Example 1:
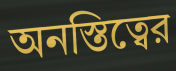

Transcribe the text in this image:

অনস্তিত্বের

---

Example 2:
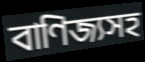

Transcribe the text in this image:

বাণিজ্যসহ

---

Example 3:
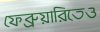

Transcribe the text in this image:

ফেব্রুয়ারিতেও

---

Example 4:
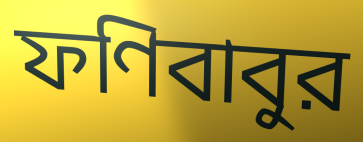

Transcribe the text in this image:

ফণিবাবুর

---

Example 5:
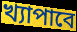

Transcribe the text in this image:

খ্যাপাবে